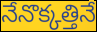
నేనొక్కత్తినే